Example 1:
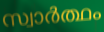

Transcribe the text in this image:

സ്വാർത്ഥം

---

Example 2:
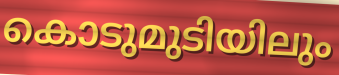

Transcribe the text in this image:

കൊടുമുടിയിലും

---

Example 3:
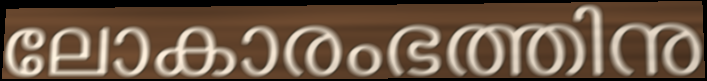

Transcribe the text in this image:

ലോകാരംഭത്തിനു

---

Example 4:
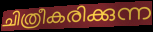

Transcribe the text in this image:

ചിത്രീകരിക്കുന്ന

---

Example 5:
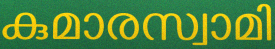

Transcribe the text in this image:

കുമാരസ്വാമി